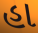
હા